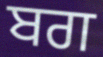
ਬਗ